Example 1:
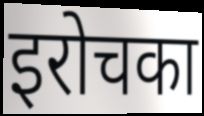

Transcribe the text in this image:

इरोचका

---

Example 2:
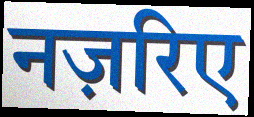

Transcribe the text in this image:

नज़रिए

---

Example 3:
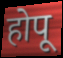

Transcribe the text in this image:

होपू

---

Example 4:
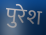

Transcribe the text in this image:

पुरेश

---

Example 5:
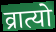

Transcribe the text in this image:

व्रात्यो